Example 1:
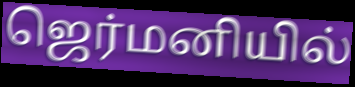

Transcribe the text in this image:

ஜெர்மனியில்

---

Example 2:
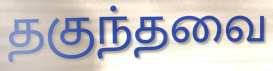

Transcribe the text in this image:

தகுந்தவை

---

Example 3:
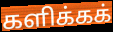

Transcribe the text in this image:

களிக்கக்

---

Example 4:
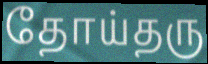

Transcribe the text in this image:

தோய்தரு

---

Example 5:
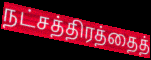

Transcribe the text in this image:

நட்சத்திரத்தைத்